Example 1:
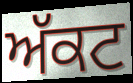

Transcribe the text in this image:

ਅੱਕਟ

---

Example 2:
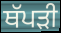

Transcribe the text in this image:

ਥੱਪੜੀ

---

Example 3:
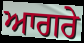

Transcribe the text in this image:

ਆਗਰੇ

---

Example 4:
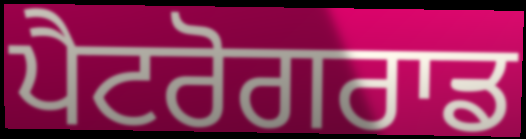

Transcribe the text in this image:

ਪੈਟਰੋਗਰਾਡ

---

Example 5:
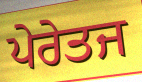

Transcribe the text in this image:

ਪੇਰੇਤਜ